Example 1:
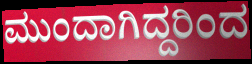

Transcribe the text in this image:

ಮುಂದಾಗಿದ್ದರಿಂದ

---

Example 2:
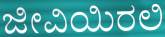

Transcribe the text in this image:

ಜೀವಿಯಿರಲಿ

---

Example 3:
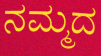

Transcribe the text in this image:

ನಮ್ಮದ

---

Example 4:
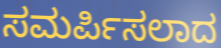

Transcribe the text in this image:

ಸಮರ್ಪಿಸಲಾದ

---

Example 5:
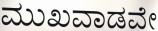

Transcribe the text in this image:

ಮುಖವಾಡವೇ